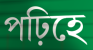
পঢ়িহে